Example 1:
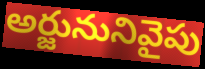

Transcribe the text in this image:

అర్జునునివైపు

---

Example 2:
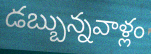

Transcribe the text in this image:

డబ్బున్నవాళ్లం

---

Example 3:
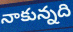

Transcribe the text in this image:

నాకున్నది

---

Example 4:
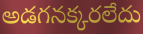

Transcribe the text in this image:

అడగనక్కరలేదు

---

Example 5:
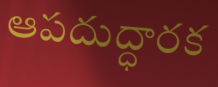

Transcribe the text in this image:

ఆపదుద్ధారక